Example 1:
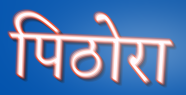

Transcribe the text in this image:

पिठोरा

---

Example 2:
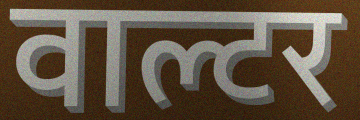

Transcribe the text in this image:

वाल्टर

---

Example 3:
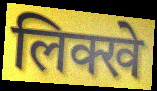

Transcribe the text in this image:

लिक्खे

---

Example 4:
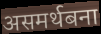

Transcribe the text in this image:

असमर्थबना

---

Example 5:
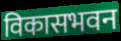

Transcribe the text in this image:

विकासभवन